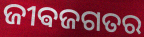
ଜୀଵଜଗତର